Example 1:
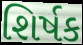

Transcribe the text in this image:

શિર્ષક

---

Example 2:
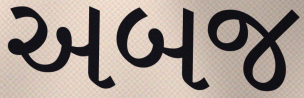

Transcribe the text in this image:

અબજ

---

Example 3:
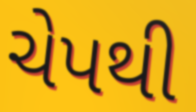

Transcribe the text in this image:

ચેપથી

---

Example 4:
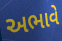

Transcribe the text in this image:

અભાવે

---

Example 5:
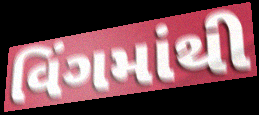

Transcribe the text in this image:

વિંગમાંથી